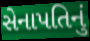
સેનાપતિનું